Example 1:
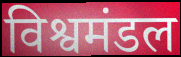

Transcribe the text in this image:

विश्वमंडल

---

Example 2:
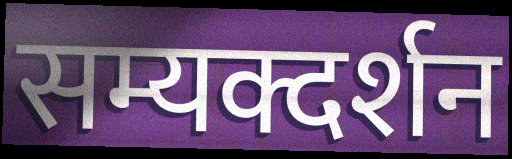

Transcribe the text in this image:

सम्यक्दर्शन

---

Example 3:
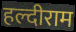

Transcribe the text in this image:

हल्दीराम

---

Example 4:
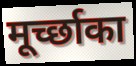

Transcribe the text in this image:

मूर्च्छाका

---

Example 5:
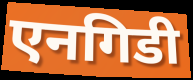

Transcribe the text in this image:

एनगिडी